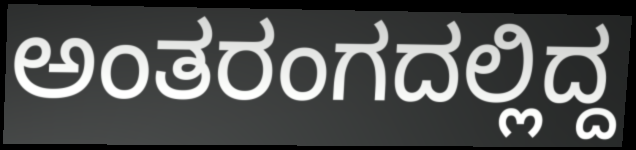
ಅಂತರಂಗದಲ್ಲಿದ್ದ